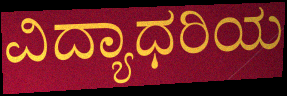
ವಿದ್ಯಾಧರಿಯ